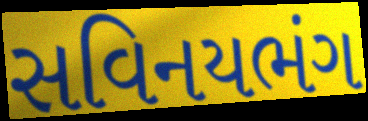
સવિનયભંગ